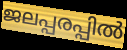
ജലപ്പരപ്പിൽ